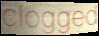
clogged